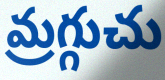
మ్రగ్గుచు